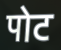
पोट